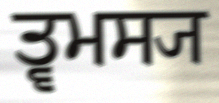
ਤ੍ਵਮਸ੍ਯ